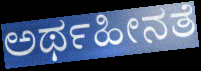
ಅರ್ಥಹೀನತೆ